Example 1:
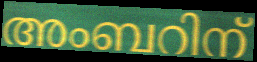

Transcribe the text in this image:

അംബറിന്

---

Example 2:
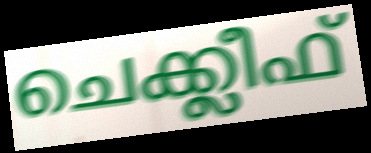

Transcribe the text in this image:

ചെക്ക്ലീഫ്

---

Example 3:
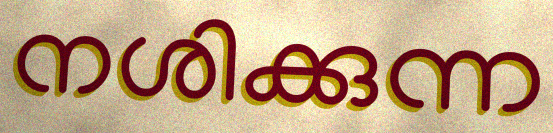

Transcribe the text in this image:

നശിക്കുന്ന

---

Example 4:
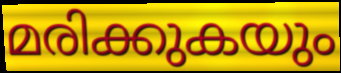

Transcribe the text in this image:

മരിക്കുകയും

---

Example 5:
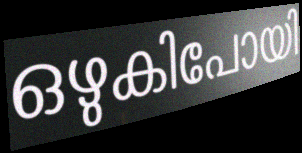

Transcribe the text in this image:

ഒഴുകിപോയി